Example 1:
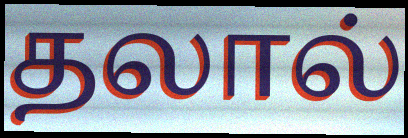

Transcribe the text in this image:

தலால்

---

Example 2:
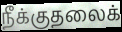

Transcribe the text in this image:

நீக்குதலைக்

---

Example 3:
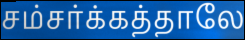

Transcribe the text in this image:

சம்சர்க்கத்தாலே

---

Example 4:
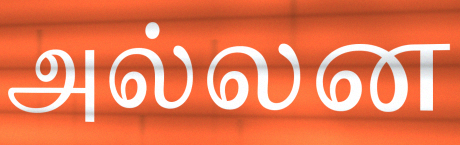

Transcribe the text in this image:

அல்லன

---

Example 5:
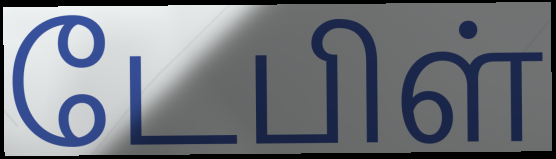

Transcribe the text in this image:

டேபிள்